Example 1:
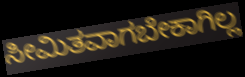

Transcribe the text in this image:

ಸೀಮಿತವಾಗಬೇಕಾಗಿಲ್ಲ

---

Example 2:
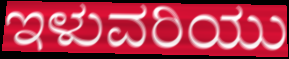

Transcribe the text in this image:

ಇಳುವರಿಯು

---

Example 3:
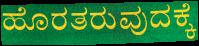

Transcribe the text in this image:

ಹೊರತರುವುದಕ್ಕೆ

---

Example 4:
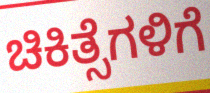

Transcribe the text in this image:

ಚಿಕಿತ್ಸೆಗಳಿಗೆ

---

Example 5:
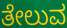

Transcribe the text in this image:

ತೇಲುವ